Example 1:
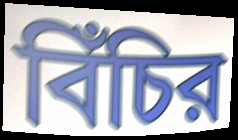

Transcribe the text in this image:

বিঁচির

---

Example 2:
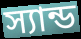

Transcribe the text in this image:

স্যান্ড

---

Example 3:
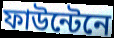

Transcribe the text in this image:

ফাউন্টেনে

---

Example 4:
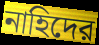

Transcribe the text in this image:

নাহিদের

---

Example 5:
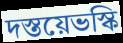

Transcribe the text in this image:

দস্তয়েভস্কি